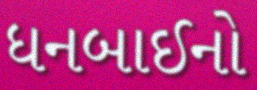
ધનબાઈનો